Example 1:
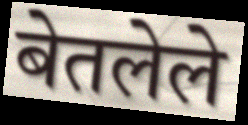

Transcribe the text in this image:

बेतलेले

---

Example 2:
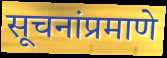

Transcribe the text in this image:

सूचनांप्रमाणे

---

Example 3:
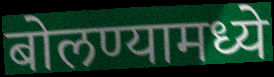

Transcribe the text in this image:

बोलण्यामध्ये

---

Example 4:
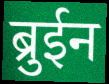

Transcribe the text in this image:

ब्रुईन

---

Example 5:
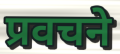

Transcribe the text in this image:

प्रवचने